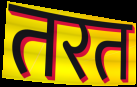
तरत